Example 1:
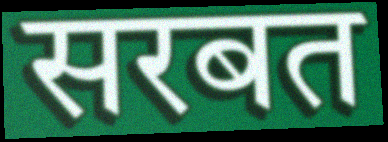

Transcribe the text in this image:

सरबत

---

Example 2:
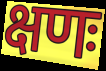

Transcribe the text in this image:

क्षणः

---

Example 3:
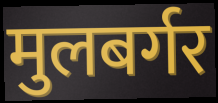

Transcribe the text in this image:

मुलबर्गर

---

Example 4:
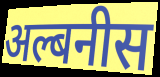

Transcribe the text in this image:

अल्बनीस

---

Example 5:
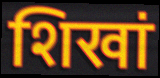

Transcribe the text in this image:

शिखां